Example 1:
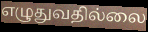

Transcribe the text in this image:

எழுதுவதில்லை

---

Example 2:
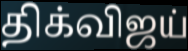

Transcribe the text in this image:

திக்விஜய்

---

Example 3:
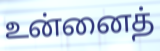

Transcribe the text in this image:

உன்னைத்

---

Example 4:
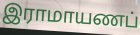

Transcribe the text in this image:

இராமாயணப்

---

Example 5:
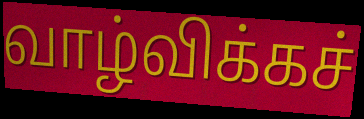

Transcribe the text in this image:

வாழ்விக்கச்